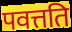
पवत्तति